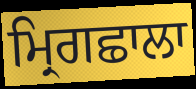
ਮ੍ਰਿਗਛਾਲਾ